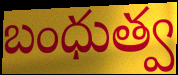
బంధుత్వ